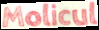
Molicul